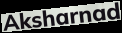
Aksharnad